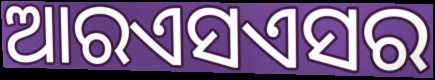
ଆରଏସଏସର